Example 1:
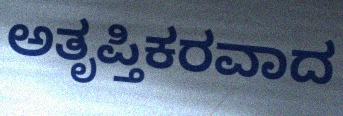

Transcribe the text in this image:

ಅತೃಪ್ತಿಕರವಾದ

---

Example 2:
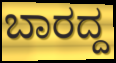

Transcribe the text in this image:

ಬಾರದ್ದ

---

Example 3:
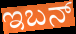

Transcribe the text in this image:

ಇಬನ್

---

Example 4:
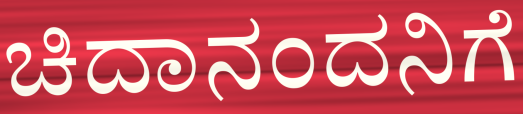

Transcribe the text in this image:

ಚಿದಾನಂದನಿಗೆ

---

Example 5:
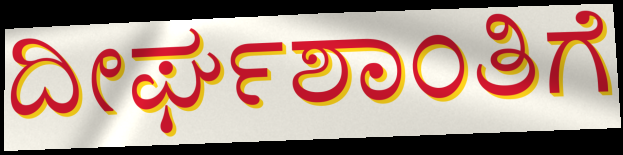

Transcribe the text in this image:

ದೀರ್ಘಶಾಂತಿಗೆ